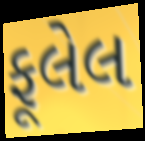
ફૂલેલ